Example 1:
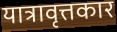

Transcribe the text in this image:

यात्रावृत्तकार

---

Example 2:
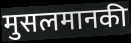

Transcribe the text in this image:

मुसलमानकी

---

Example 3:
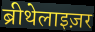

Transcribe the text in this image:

ब्रीथेलाइज़र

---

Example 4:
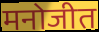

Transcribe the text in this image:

मनोजीत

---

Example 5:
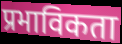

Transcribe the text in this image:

प्रभाविकता